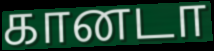
கானடா